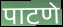
पाटणे